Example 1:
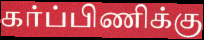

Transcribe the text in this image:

கர்ப்பிணிக்கு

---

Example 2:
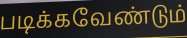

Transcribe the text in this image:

படிக்கவேண்டும்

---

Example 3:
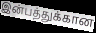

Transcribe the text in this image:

இன்பத்துக்கான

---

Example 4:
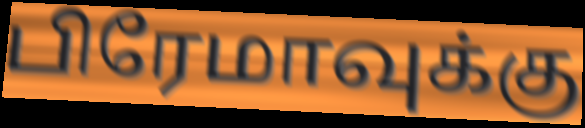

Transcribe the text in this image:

பிரேமாவுக்கு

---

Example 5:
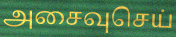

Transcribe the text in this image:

அசைவுசெய்